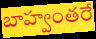
బాహ్వంతరే